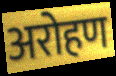
अरोहण